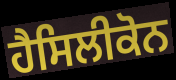
ਹੈਸਿਲੀਕੋਨ